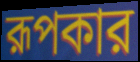
রূপকার